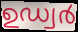
ഉഡ്വർ